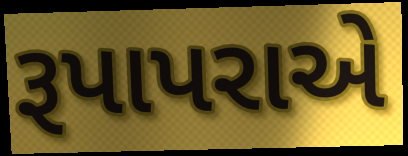
રૂપાપરાએ